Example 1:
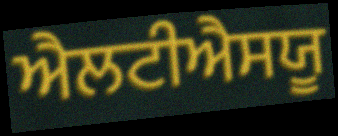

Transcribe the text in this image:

ਐਲਟੀਐਸਯੂ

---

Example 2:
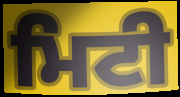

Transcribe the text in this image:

ਮਿਟੀ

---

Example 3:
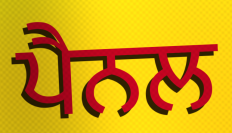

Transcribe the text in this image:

ਪੈਨਲ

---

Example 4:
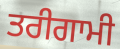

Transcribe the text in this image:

ਤਰੀਗਾਮੀ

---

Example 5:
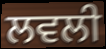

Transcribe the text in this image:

ਲਵਲੀ